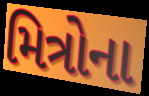
મિત્રોના